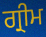
ਗ੍ਰੀਮ